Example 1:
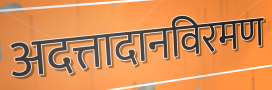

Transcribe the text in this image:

अदत्तादानविरमण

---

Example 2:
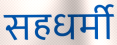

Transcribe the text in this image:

सहधर्मी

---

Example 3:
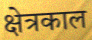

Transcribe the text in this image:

क्षेत्रकाल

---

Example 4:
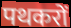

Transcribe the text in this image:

पथकरों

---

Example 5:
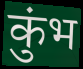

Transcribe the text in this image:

कुंभ